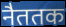
नैततक